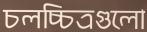
চলচ্চিত্রগুলো